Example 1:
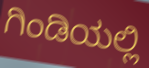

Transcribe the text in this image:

ಗಿಂಡಿಯಲ್ಲಿ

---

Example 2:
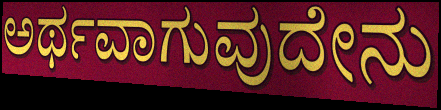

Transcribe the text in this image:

ಅರ್ಥವಾಗುವುದೇನು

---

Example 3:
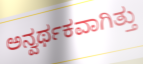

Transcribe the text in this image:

ಅನ್ವರ್ಥಕವಾಗಿತ್ತು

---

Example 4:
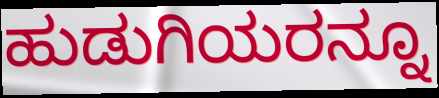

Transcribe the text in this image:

ಹುಡುಗಿಯರನ್ನೂ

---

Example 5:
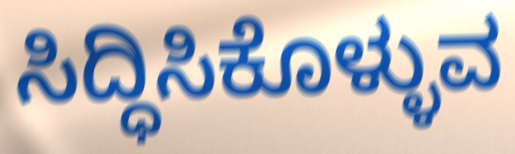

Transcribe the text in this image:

ಸಿದ್ಧಿಸಿಕೊಳ್ಳುವ